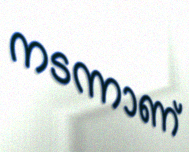
നടന്നാണ്